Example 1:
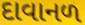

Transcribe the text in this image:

દાવાનળ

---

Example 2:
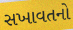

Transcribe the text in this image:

સખાવતનો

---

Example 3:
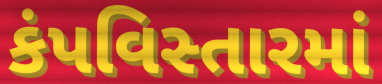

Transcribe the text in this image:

કંપવિસ્તારમાં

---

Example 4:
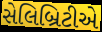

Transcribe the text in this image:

સેલિબ્રિટીએ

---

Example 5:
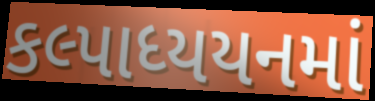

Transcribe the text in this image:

કલ્પાધ્યયનમાં